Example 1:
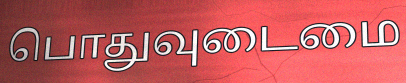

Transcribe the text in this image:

பொதுவுடைமை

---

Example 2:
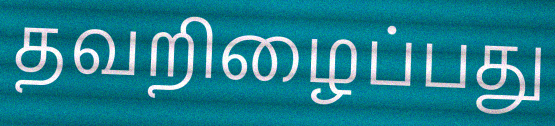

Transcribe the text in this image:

தவறிழைப்பது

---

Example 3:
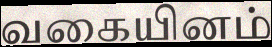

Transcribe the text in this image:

வகையினம்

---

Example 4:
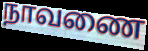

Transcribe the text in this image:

நாவணை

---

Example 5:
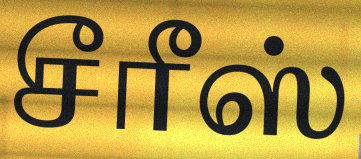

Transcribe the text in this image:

சீரீஸ்